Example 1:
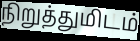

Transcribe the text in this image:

நிறுத்துமிடம்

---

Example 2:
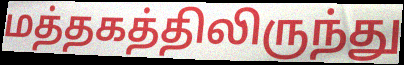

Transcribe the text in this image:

மத்தகத்திலிருந்து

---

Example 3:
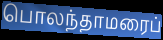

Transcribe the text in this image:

பொலந்தாமரைப்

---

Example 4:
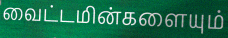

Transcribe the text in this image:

வைட்டமின்களையும்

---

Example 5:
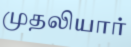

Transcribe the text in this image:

முதலியார்